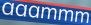
aaammm